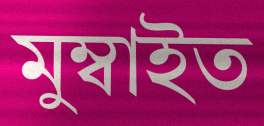
মুম্বাইত